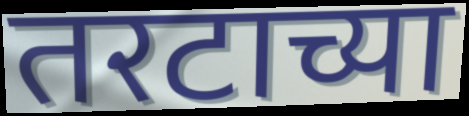
तरटाच्या